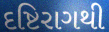
દષ્ટિરાગથી